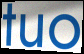
tuo